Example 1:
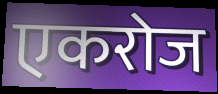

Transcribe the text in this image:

एकरोज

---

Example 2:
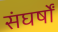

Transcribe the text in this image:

संघर्षों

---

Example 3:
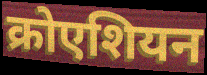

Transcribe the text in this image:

क्रोएशियन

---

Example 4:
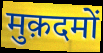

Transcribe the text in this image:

मुक़दमों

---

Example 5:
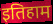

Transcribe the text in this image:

इतिहाम